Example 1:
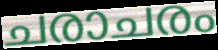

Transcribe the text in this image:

ചരാചരം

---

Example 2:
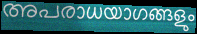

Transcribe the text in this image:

അപരാധയാഗങ്ങളും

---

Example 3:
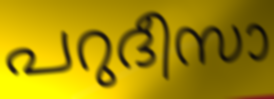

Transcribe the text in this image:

പറുദീസാ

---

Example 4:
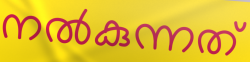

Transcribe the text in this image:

നൽകുന്നത്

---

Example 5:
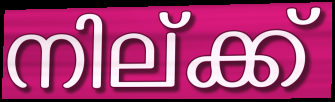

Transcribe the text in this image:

നില്ക്ക്